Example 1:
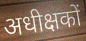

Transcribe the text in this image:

अधीक्षकों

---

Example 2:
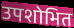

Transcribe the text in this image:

उपशोभित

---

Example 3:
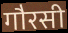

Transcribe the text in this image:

गौरसी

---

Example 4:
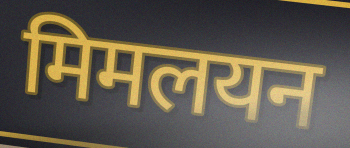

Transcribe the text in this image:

मिमलयन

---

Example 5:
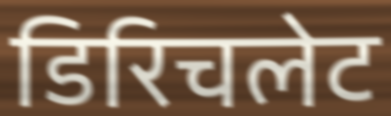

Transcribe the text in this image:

डिरिचलेट